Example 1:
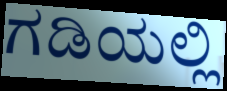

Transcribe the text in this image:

ಗಡಿಯಲ್ಲಿ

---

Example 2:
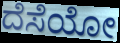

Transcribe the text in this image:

ದೆಸೆಯೋ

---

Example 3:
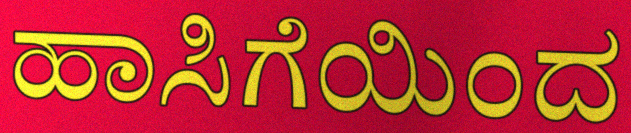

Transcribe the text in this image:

ಹಾಸಿಗೆಯಿಂದ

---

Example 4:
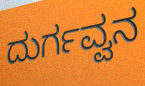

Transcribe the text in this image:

ದುರ್ಗವ್ವನ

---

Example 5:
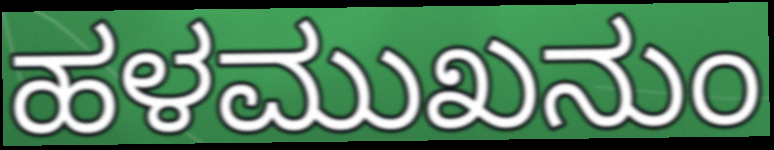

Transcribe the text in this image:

ಹಳಮುಖನುಂ